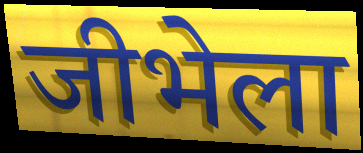
जीभेला